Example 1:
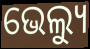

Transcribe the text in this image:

ଭେଲ୍ୟୁ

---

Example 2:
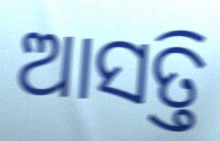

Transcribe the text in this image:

ଆସତ୍ତି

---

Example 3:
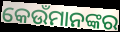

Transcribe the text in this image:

କେଉଁମାନଙ୍କର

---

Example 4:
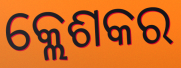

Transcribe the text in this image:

କ୍ଲେଶକର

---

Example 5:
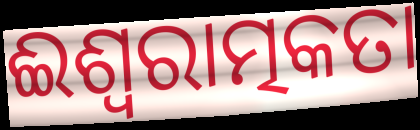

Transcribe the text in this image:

ଈଶ୍ଵରାତ୍ମକତା